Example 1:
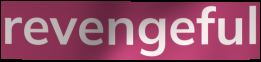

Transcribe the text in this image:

revengeful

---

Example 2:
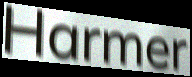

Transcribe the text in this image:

Harmer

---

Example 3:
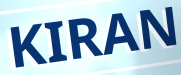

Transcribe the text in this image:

KIRAN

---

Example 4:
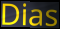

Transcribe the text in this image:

Dias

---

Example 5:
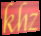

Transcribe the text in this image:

khz